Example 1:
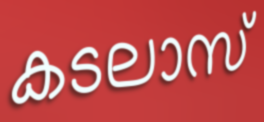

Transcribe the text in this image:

കടലാസ്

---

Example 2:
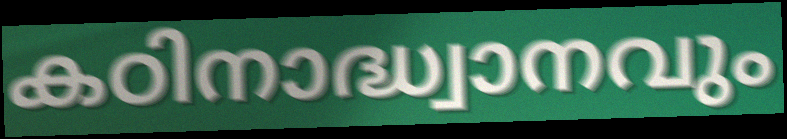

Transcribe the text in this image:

കഠിനാദ്ധ്വാനവും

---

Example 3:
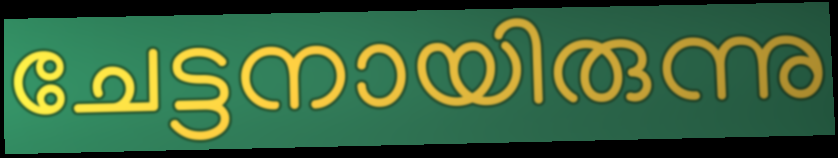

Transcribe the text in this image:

ചേട്ടനായിരുന്നു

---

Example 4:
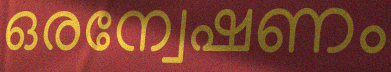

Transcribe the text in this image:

ഒരന്വേഷണം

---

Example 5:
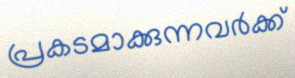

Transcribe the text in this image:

പ്രകടമാക്കുന്നവർക്ക്